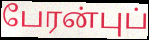
பேரன்புப்